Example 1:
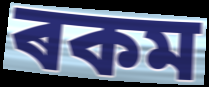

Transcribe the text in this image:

ৰকম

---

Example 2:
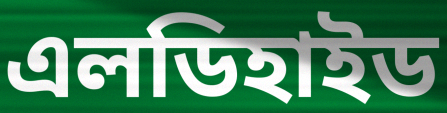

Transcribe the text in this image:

এলডিহাইড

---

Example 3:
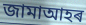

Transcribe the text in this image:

জামাআহৰ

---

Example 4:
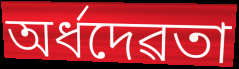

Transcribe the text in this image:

অৰ্ধদেৱতা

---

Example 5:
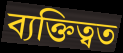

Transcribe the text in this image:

ব্যক্তিত্বত